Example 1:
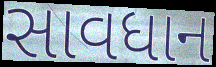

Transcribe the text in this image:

સાવધાન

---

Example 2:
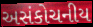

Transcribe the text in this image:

અસંકોચનીય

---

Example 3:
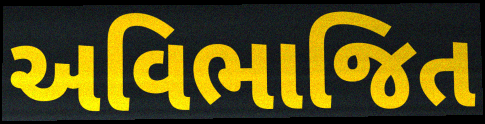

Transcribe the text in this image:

અવિભાજિત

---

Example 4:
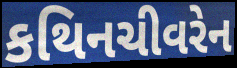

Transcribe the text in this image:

કથિનચીવરેન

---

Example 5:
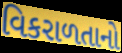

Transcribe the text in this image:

વિકરાળતાનો